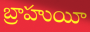
బ్రాహుయీ